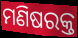
ମଣିଷରକ୍ତ